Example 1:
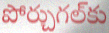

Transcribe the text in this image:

పోర్చుగల్‌కు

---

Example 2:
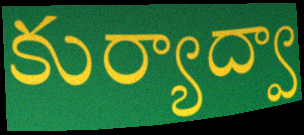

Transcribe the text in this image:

కుర్యాద్వా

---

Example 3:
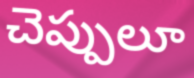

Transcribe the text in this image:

చెప్పులూ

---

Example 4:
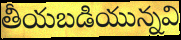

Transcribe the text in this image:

తీయబడియున్నవి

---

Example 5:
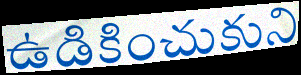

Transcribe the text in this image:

ఉడికించుకుని